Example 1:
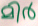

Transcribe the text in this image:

മിർ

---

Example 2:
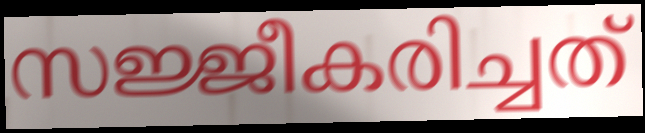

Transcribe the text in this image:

സജ്ജീകരിച്ചത്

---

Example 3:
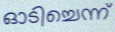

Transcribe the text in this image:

ഓടിച്ചെന്ന്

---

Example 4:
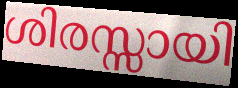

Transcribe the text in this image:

ശിരസ്സായി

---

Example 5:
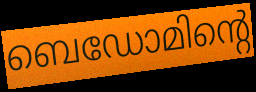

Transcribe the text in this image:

ബെഡോമിന്റെ